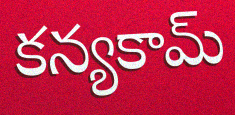
కన్యకామ్